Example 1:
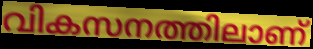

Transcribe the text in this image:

വികസനത്തിലാണ്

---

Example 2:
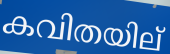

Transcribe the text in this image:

കവിതയില്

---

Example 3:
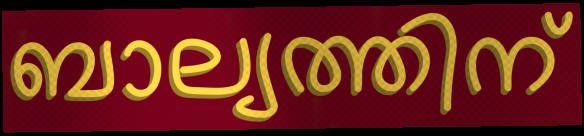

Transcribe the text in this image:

ബാല്യത്തിന്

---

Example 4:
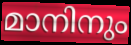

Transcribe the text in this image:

മാനിനും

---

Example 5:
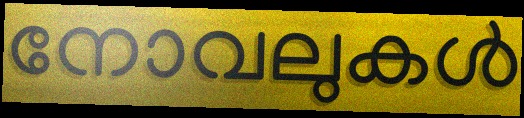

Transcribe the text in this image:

നോവലുകൾ